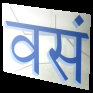
वसं